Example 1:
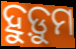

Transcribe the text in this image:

ହୁଡ଼ୁମ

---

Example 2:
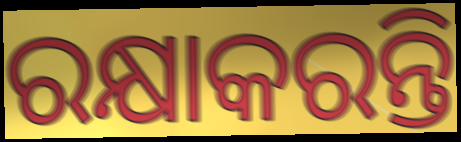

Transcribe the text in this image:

ରକ୍ଷାକରନ୍ତି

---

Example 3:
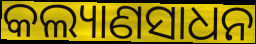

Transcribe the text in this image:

କଲ୍ୟାଣସାଧନ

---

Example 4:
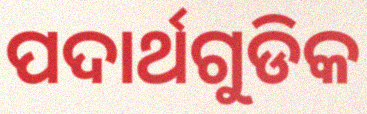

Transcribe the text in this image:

ପଦାର୍ଥଗୁଡିକ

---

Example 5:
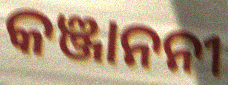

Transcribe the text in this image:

କଞ୍ଜାନନୀ